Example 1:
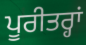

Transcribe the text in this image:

ਪੂਰੀਤਰ੍ਹਾਂ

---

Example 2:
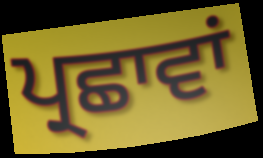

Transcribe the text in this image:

ਪ੍ਰਛਾਵਾਂ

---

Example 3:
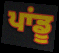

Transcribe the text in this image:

ਪਾਂਡੂ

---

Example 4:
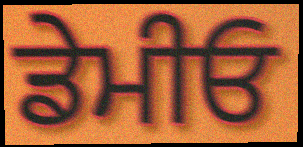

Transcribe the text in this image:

ਡੇਮੀਓ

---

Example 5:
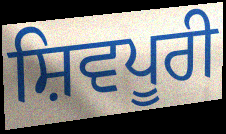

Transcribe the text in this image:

ਸ਼ਿਵਪੂਰੀ